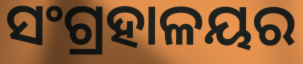
ସଂଗ୍ରହାଳୟର